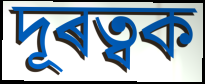
দূৰত্বক